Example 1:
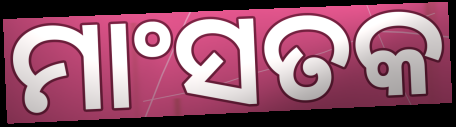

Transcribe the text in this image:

ମାଂସତକ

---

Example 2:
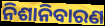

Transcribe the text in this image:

ନିଶାନିବାରଣ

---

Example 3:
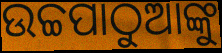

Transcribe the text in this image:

ଉଚ୍ଚପାଠୁଆଙ୍କୁ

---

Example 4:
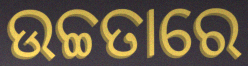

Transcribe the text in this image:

ଉଚ୍ଚତାରେ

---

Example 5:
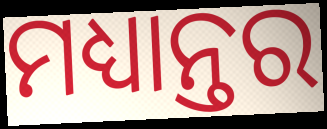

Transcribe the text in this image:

ମଧ୍ୟାନ୍ତର